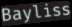
Bayliss